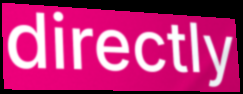
directly